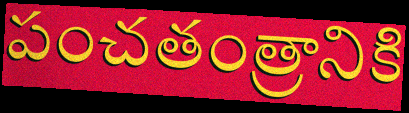
పంచతంత్రానికి